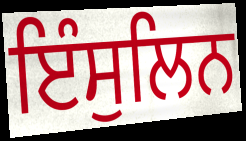
ਇੰਸੁਲਿਨ